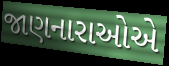
જાણનારાઓએ